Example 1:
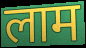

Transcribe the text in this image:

लाम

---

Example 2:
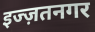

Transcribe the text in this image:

इज्ज़तनगर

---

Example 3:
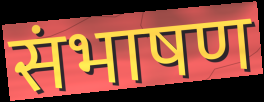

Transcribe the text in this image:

संभाषण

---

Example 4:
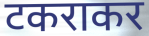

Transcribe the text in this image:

टकराकर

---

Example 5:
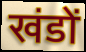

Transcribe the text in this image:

खंडों